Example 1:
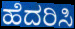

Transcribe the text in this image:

ಹೆದರಿಸಿ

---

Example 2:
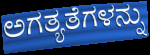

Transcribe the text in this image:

ಅಗತ್ಯತೆಗಳನ್ನು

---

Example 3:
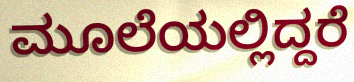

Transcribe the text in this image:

ಮೂಲೆಯಲ್ಲಿದ್ದರೆ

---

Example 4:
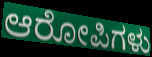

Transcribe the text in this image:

ಆರೋಪಿಗಳು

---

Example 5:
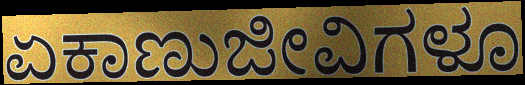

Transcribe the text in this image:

ಏಕಾಣುಜೀವಿಗಳೂ